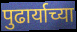
पुढार्याच्या